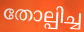
തോല്പിച്ച